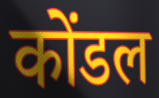
कोंडल